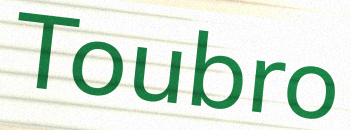
Toubro